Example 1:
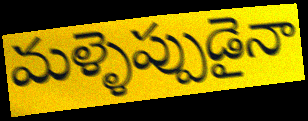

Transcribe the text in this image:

మళ్ళెప్పుడైనా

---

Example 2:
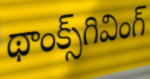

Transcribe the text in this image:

థాంక్స్‌గివింగ్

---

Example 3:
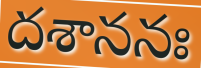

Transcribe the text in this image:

దశాననః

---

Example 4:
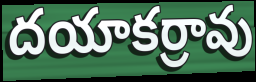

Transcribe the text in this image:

దయాకర్రావు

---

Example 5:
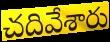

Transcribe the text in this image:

చదివేశారు